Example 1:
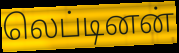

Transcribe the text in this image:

லெப்டினன்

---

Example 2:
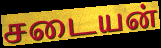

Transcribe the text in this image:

சடையன்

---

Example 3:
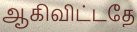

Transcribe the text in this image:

ஆகிவிட்டதே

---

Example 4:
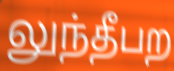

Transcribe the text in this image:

லுந்தீபற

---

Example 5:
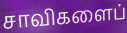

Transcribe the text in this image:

சாவிகளைப்